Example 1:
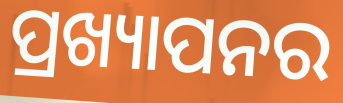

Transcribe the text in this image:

ପ୍ରଖ୍ୟାପନର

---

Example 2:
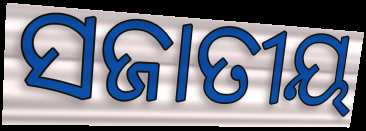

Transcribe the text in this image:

ସଜାତୀୟ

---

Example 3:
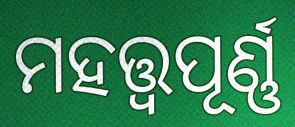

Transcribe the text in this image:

ମହତ୍ତ୍ଵପୂର୍ଣ୍ଣ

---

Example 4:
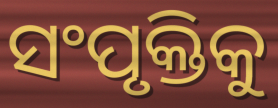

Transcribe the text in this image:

ସଂପୃକ୍ତିକୁ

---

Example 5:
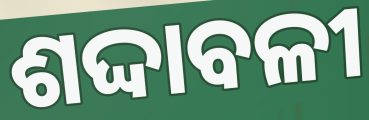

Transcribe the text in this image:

ଶଦ୍ଦାବଳୀ